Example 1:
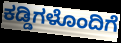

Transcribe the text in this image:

ಕಡ್ಡಿಗಳೊಂದಿಗೆ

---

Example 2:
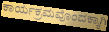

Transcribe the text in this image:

ಕಾರ್ಯಕ್ರಮವೊಂದಕ್ಕಾಗಿ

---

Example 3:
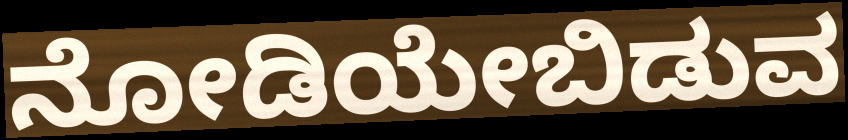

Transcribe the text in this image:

ನೋಡಿಯೇಬಿಡುವ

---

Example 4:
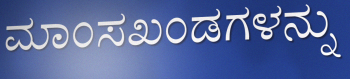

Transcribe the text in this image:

ಮಾಂಸಖಂಡಗಳನ್ನು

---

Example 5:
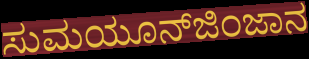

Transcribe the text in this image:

ಸುಮಯೂನ್‍ಜಿಂಜಾನ